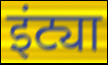
इंट्या